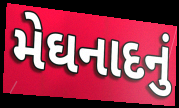
મેઘનાદનું